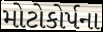
મોટોકોર્પના